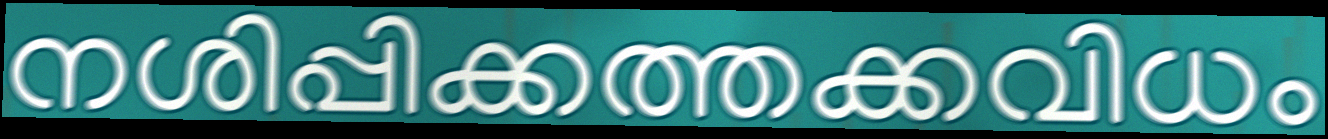
നശിപ്പിക്കത്തക്കവിധം